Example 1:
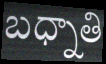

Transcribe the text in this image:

బధ్నాతి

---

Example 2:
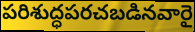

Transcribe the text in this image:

పరిశుద్ధపరచబడినవారై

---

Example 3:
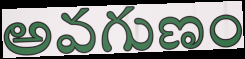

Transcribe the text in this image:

అవగుణం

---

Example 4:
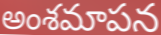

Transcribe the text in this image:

అంశమాపన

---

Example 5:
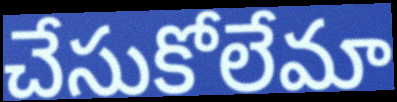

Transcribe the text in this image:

చేసుకోలేమా